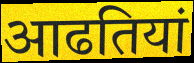
आढतियां